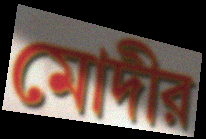
মোদীর